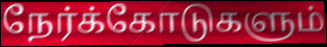
நேர்க்கோடுகளும்